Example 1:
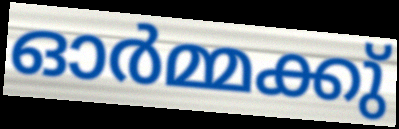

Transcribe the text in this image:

ഓർമ്മക്കു്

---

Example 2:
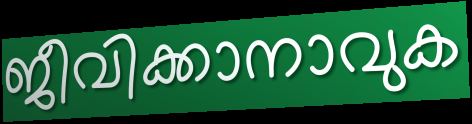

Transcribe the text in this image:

ജീവിക്കാനാവുക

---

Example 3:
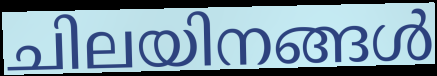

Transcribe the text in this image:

ചിലയിനങ്ങൾ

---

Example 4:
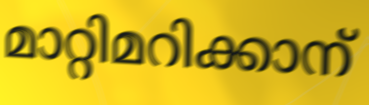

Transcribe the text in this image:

മാറ്റിമറിക്കാന്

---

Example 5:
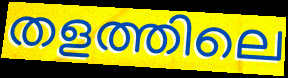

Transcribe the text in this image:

തളത്തിലെ